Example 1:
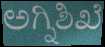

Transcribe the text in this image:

ಅಗ್ನಿಶಿಖೆ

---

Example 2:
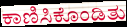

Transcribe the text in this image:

ಕಾಣಿಸಿಕೊಂಡಿತು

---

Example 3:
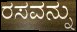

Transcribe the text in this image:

ರಸವನ್ನು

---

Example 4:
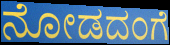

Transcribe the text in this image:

ನೋಡದಂಗೆ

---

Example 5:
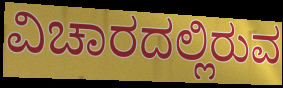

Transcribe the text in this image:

ವಿಚಾರದಲ್ಲಿರುವ